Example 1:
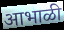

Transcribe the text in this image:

आभाळी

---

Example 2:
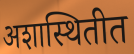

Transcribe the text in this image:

अशास्थितीत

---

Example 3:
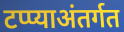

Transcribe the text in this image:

टप्प्याअंतर्गत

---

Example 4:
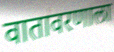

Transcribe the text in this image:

वातावरणाला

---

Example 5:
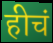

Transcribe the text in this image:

हीचं